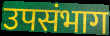
उपसंभाग